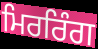
ਮਿਰਰਿੰਗ